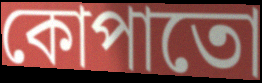
কোপাতো